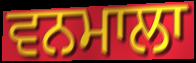
ਵਨਮਾਲਾ